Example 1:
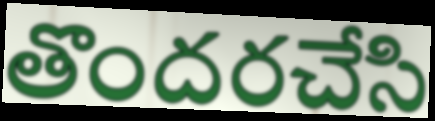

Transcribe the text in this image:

తొందరచేసి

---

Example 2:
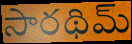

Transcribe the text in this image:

సారథిమ్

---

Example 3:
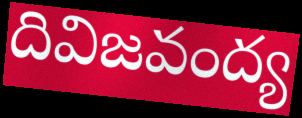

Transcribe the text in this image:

దివిజవంద్య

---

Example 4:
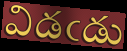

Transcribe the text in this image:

విడఁడు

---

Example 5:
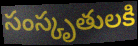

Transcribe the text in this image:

సంస్కృతులకి